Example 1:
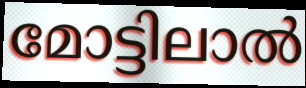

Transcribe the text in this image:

മോട്ടിലാൽ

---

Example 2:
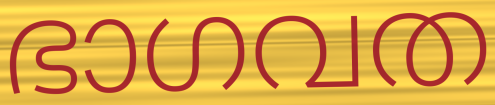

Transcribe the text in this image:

ഭാഗവത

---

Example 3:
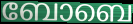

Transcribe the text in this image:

ബോബെ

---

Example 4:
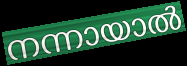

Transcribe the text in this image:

നന്നായാൽ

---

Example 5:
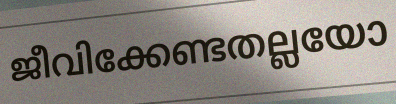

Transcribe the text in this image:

ജീവിക്കേണ്ടതല്ലയോ